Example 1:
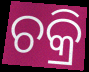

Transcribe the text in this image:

ଚକ୍ରି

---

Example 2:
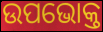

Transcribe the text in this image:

ଉପଭୋକ୍ତ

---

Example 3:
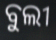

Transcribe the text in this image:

ବୁଲୀ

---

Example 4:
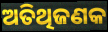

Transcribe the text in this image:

ଅତିଥିଜଣକ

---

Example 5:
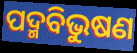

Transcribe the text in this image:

ପଦ୍ମବିଭୁଷଣ